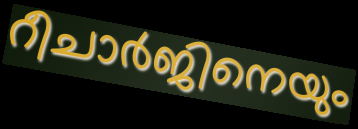
റീചാർജിനെയും